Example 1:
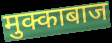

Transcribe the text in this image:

मुक्काबाज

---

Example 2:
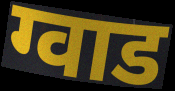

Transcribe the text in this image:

ग्वाड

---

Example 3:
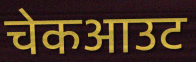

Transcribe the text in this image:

चेकआउट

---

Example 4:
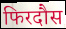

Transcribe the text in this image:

फिरदौस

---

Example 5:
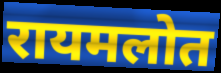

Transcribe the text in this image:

रायमलोत